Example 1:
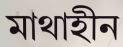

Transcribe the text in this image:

মাথাহীন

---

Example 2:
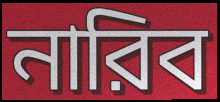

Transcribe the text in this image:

নারিব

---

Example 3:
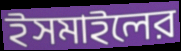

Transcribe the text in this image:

ইসমাইলের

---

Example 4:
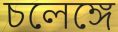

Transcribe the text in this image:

চলেঙ্গে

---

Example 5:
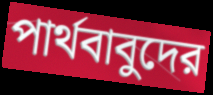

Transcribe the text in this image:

পার্থবাবুদের